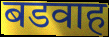
बडवाह